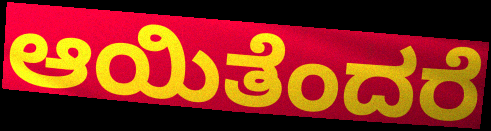
ಆಯಿತೆಂದರೆ